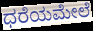
ಧರೆಯಮೇಲೆ